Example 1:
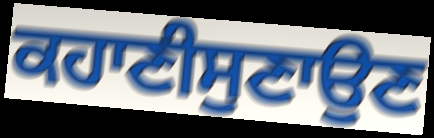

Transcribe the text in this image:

ਕਹਾਣੀਸੁਣਾਉਣ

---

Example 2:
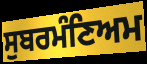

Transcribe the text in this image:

ਸੁਬਰਮੰਣਿਅਮ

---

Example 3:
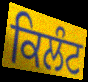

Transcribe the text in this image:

ਕਿਲੰਟ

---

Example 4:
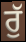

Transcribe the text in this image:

ਰੁੱ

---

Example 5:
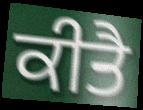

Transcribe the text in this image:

ਕੀਤੈ